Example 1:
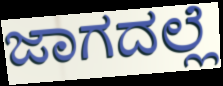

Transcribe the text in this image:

ಜಾಗದಲ್ಲೆ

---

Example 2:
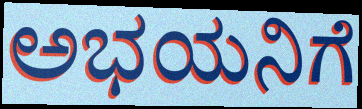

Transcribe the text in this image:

ಅಭಯನಿಗೆ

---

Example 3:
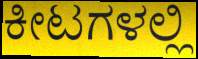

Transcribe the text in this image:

ಕೀಟಗಳಲ್ಲಿ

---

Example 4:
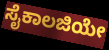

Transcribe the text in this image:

ಸೈಕಾಲಜಿಯೇ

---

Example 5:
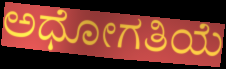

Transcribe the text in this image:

ಅಧೋಗತಿಯೆ